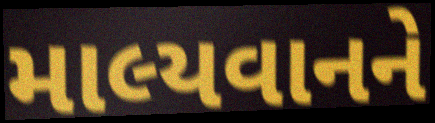
માલ્યવાનને